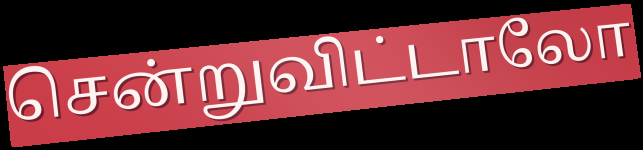
சென்றுவிட்டாலோ